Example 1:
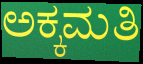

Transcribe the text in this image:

ಅಕ್ಕಮತಿ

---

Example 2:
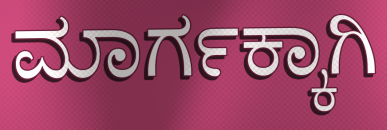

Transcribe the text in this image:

ಮಾರ್ಗಕ್ಕಾಗಿ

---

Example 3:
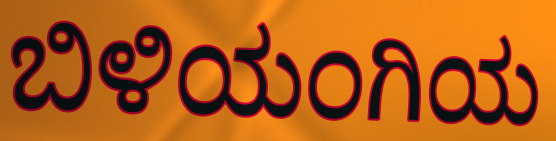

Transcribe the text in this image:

ಬಿಳಿಯಂಗಿಯ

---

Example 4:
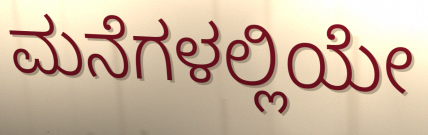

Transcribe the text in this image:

ಮನೆಗಳಲ್ಲಿಯೇ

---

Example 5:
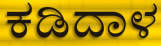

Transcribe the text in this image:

ಕಡಿದಾಳ